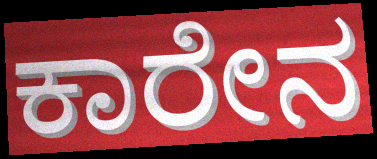
ಕಾರೇನ